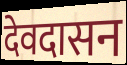
देवदासन